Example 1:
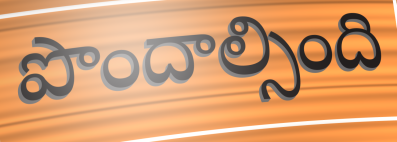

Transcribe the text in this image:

పొందాల్సింది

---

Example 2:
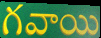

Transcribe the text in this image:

గవాయి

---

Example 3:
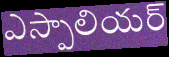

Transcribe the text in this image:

ఎస్పాలియర్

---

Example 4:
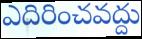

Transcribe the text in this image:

ఎదిరించవద్దు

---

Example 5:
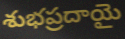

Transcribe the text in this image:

శుభప్రదాయై